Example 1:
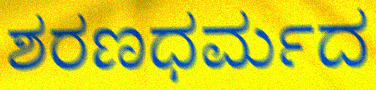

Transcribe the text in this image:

ಶರಣಧರ್ಮದ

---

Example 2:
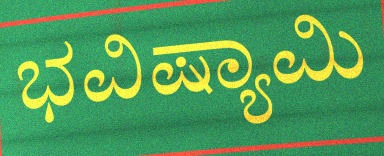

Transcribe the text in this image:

ಭವಿಷ್ಯಾಮಿ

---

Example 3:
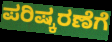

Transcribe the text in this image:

ಪರಿಷ್ಕರಣೆಗೆ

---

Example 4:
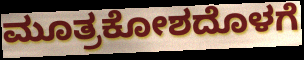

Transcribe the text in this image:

ಮೂತ್ರಕೋಶದೊಳಗೆ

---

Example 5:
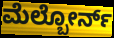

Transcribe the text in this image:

ಮೆಲ್ಬೋರ್ನ್